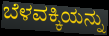
ಬೆಳವಕ್ಕಿಯನ್ನು